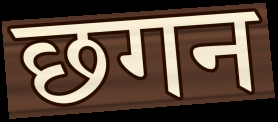
छगन